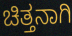
ಚಿತ್ತನಾಗಿ